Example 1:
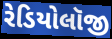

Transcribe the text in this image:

રેડિયોલૉજી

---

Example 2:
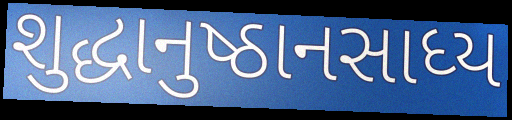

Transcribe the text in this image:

શુદ્ધાનુષ્ઠાનસાધ્ય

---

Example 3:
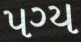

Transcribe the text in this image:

પગ્ય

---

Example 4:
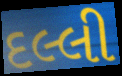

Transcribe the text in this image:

દલ્લી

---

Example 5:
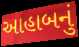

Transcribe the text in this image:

આહાબનું